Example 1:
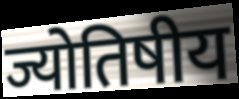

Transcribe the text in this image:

ज्योतिषीय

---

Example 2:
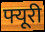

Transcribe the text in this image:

फ्यूरी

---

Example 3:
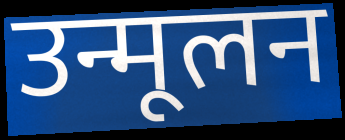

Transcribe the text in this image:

उन्‍मूलन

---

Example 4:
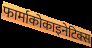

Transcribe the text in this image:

फार्माकोकाइनेटिक्स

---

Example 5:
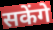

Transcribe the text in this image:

सकेंगे